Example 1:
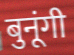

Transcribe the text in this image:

बुनूंगी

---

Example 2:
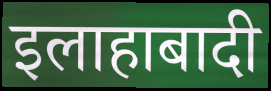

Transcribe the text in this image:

इलाहाबादी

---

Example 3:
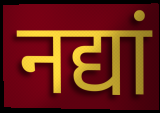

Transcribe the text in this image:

नद्यां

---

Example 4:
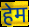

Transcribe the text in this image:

हेम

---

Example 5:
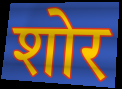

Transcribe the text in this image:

शोर